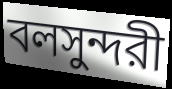
বলসুন্দরী